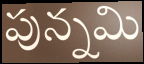
పున్నమి